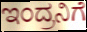
ಇಂದ್ರನಿಗೆ